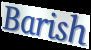
Barish